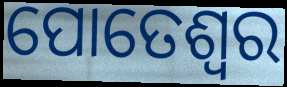
ପୋତେଶ୍ବର